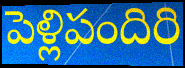
పెళ్లిపందిరి